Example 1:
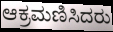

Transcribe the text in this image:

ಆಕ್ರಮಣಿಸಿದರು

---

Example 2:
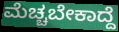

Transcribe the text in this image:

ಮೆಚ್ಚಬೇಕಾದ್ದೆ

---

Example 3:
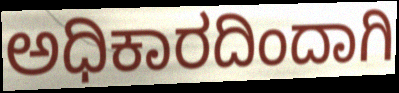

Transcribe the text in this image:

ಅಧಿಕಾರದಿಂದಾಗಿ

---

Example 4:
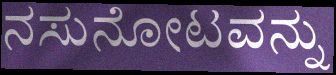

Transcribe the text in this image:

ನಸುನೋಟವನ್ನು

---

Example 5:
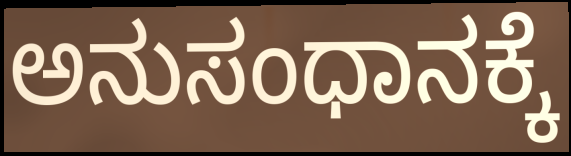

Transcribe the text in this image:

ಅನುಸಂಧಾನಕ್ಕೆ